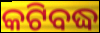
କଟିବଦ୍ଧ